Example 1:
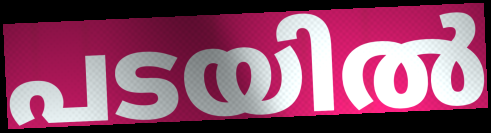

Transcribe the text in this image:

പടയിൽ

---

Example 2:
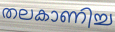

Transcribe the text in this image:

തലകാണിച്ച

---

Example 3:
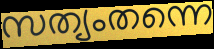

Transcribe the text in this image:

സത്യംതന്നെ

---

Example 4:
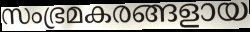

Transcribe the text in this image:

സംഭ്രമകരങ്ങളായ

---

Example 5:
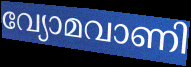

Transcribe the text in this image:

വ്യോമവാണി